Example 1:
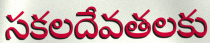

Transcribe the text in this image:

సకలదేవతలకు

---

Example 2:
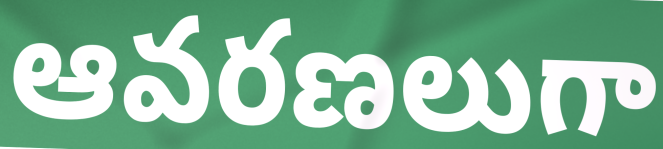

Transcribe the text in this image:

ఆవరణలుగా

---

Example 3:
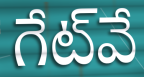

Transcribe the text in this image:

గేట్‌వే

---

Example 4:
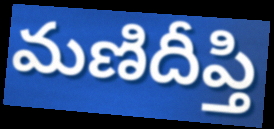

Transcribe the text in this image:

మణిదీప్తి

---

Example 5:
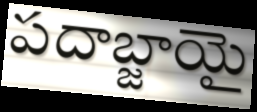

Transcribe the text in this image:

పదాబ్జాయై